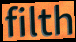
filth